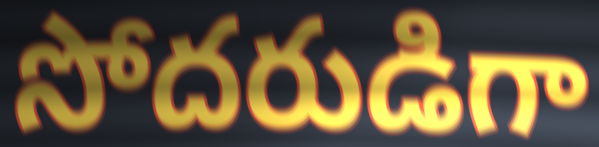
సోదరుడిగా